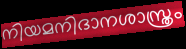
നിയമനിദാനശാസ്ത്രം